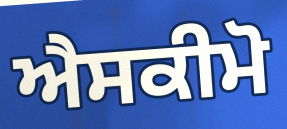
ਐਸਕੀਮੋ